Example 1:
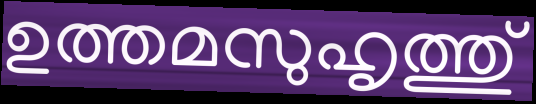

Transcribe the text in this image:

ഉത്തമസുഹൃത്തു്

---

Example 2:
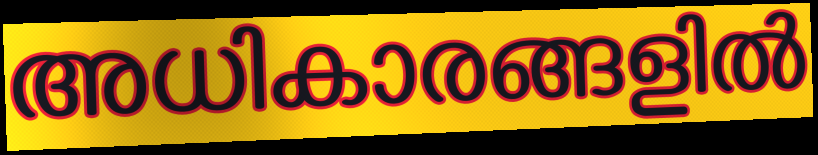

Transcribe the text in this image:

അധികാരങ്ങളിൽ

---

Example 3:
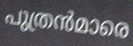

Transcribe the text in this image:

പുത്രൻമാരെ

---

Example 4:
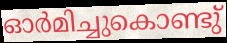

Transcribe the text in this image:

ഓർമിച്ചുകൊണ്ടു്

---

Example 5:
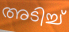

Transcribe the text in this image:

അടിച്ച്